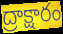
ద్రాక్షారం